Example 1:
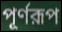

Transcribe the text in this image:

পূর্ণরূপ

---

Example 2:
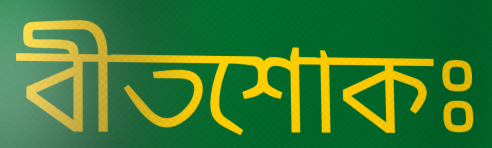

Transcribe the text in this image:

বীতশোকঃ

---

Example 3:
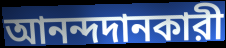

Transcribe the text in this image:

আনন্দদানকারী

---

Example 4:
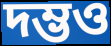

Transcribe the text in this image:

দম্ভও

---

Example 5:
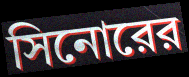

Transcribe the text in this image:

সিনোরের